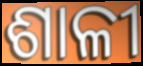
ଶାଳୀ